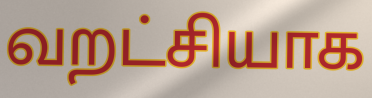
வறட்சியாக